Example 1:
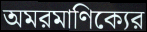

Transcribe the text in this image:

অমরমাণিক্যের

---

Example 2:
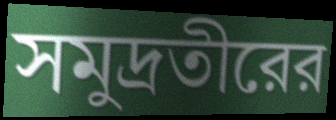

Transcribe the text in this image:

সমুদ্রতীরের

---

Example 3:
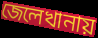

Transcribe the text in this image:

জেলেখানায়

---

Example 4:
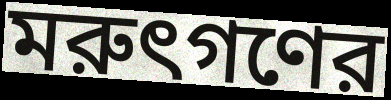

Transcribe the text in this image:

মরুৎগণের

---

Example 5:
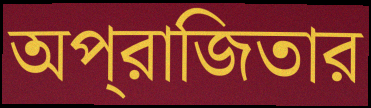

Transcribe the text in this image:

অপ্‌রাজিতার